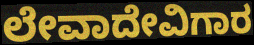
ಲೇವಾದೇವಿಗಾರ